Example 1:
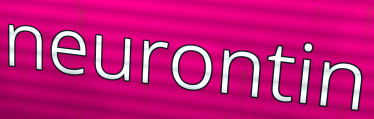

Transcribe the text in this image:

neurontin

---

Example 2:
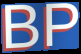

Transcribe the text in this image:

BP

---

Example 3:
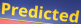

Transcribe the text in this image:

Predicted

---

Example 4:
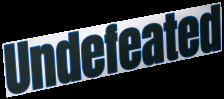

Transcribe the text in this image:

Undefeated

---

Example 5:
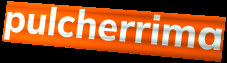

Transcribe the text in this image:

pulcherrima